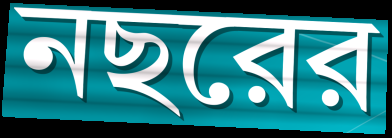
নছরের